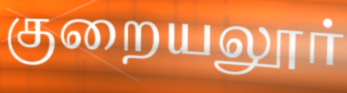
குறையலூர்